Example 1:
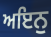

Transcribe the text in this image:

ਅਇਨੁ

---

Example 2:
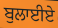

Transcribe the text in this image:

ਬੁਲਾਈਏ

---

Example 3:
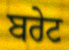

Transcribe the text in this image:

ਬਰੇਟ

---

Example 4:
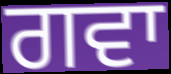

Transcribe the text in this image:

ਗਵਾ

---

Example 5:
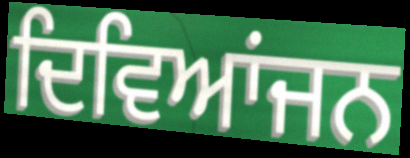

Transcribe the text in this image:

ਦਿਵਿਆਂਜਨ